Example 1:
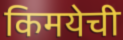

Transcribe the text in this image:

किमयेची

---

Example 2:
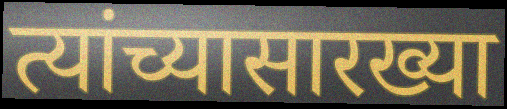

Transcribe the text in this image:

त्यांच्यासारख्या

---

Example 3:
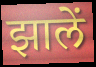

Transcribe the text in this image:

झालें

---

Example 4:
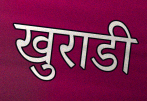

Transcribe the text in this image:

खुराडी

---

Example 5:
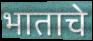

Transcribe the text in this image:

भाताचे